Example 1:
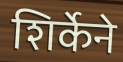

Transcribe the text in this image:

शिर्केने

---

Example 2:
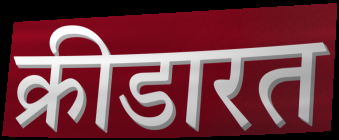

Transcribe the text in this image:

क्रीडारत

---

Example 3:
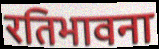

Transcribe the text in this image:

रतिभावना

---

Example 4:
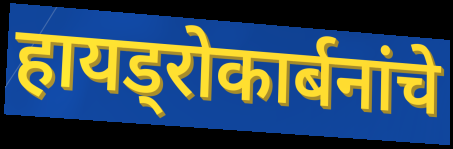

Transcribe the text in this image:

हायड्रोकार्बनांचे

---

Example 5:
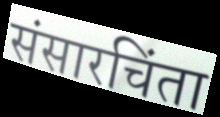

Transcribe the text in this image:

संसारचिंता